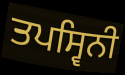
ਤਪਸ੍ਵਿਨੀ